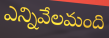
ఎన్నివేలమంది